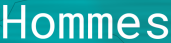
Hommes